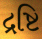
દ્રષ્ટિ